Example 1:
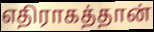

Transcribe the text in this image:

எதிராகத்தான்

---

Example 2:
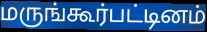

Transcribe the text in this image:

மருங்கூர்பட்டினம்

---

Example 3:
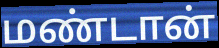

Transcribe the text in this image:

மண்டான்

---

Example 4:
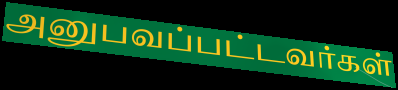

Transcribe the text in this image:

அனுபவப்பட்டவர்கள்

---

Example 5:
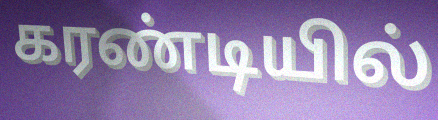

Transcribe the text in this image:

கரண்டியில்